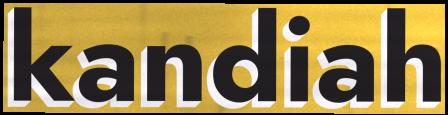
kandiah